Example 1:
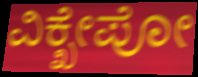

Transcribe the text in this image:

ವಿಕ್ಖೇಪೋ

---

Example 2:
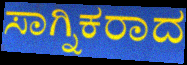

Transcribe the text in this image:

ಸಾಗ್ನಿಕರಾದ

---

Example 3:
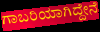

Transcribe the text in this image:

ಗಾಬರಿಯಾಗಿದ್ದೇನೆ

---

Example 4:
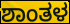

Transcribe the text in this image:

ಶಾಂತಳ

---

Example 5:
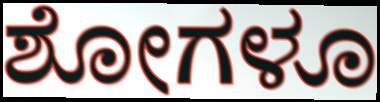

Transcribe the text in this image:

ಶೋಗಳೂ